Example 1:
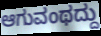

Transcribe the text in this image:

ಆಗುವಂಥದ್ದು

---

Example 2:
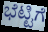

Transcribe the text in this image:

ಭೆಟ್ಟಿಗೆ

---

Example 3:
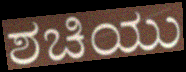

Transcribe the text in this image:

ಶಚಿಯು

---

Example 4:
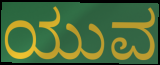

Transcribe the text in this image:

ಯುವ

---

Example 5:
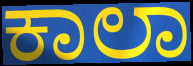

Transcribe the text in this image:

ಕಾಲಾ